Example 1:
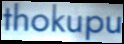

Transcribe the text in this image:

thokupu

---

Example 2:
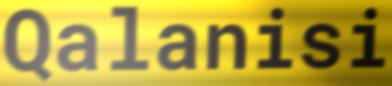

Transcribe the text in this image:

Qalanisi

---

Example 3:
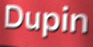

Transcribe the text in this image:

Dupin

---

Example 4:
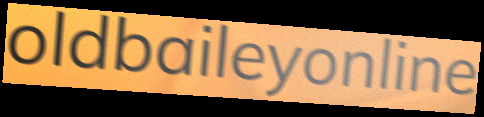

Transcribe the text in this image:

oldbaileyonline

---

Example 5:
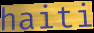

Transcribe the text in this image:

haiti